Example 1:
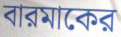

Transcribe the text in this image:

বারমাকের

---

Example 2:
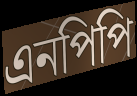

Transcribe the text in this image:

এনপিপি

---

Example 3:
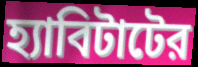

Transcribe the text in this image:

হ্যাবিটাটের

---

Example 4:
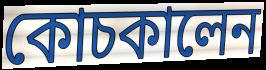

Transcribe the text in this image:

কোচকালেন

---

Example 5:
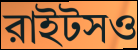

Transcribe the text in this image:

রাইটসও